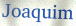
Joaquim